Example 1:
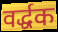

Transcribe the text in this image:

वर्द्धक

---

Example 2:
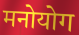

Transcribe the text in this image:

मनोयोग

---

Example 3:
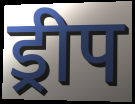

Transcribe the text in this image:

ड्रीप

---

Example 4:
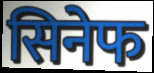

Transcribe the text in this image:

सिनेफ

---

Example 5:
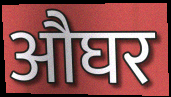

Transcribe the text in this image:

औघर